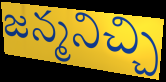
జన్మనిచ్చి